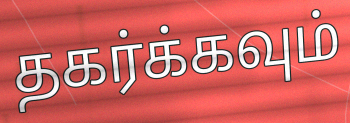
தகர்க்கவும்